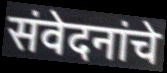
संवेदनांचे